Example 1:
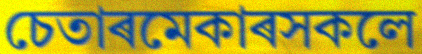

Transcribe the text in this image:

চেতাৰমেকাৰসকলে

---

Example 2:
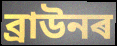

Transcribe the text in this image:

ব্ৰাউনৰ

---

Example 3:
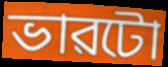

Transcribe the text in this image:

ভাৱটো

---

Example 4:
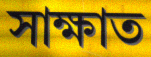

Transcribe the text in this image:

সাক্ষাত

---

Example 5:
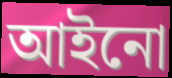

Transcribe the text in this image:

আইনো